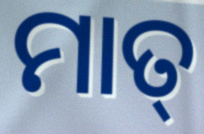
ମାତ୍